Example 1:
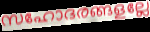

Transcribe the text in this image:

സഹോദരങ്ങളല്ലേ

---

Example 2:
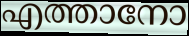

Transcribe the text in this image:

എത്താനോ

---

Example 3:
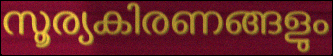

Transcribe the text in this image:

സൂര്യകിരണങ്ങളും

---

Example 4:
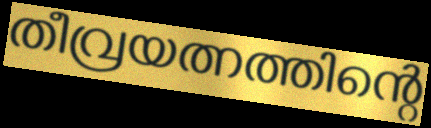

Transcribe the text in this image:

തീവ്രയത്നത്തിന്റെ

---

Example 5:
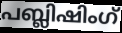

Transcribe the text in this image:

പബ്ലിഷിംഗ്